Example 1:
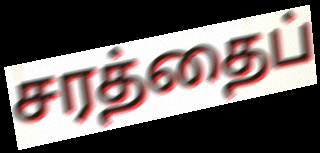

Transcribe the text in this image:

சரத்தைப்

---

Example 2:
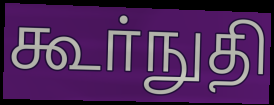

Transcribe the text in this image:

கூர்நுதி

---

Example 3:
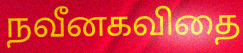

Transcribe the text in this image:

நவீனகவிதை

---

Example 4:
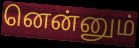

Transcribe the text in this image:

னென்னும்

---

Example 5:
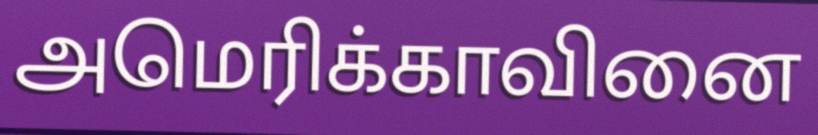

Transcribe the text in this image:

அமெரிக்காவினை